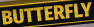
BUTTERFLY